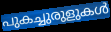
പുകച്ചുരുളുകൾ